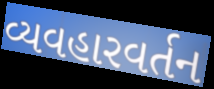
વ્યવહારવર્તન